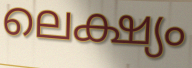
ലെക്ഷ്യം